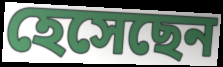
হেসেছেন